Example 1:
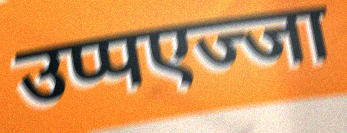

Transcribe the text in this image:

उप्पएज्जा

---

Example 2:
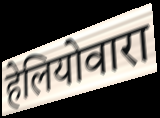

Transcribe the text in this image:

हेलियोवारा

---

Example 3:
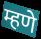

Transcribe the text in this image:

म्हणे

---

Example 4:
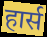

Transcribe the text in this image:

हार्स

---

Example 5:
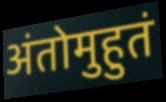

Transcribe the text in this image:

अंतोमुहुतं